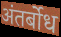
अंतर्बोध